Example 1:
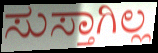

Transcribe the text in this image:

ಸುಸ್ತಾಗಿಲ್ಲ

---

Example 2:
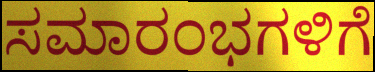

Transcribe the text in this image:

ಸಮಾರಂಭಗಳಿಗೆ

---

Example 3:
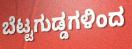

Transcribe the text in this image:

ಬೆಟ್ಟಗುಡ್ಡಗಳಿಂದ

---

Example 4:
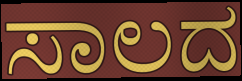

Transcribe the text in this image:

ಸಾಲದ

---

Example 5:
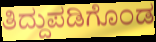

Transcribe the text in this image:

ತಿದ್ದುಪಡಿಗೊಂಡ